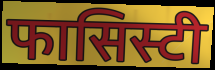
फासिस्टी